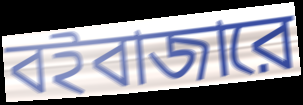
বইবাজারে